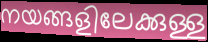
നയങ്ങളിലേക്കുള്ള